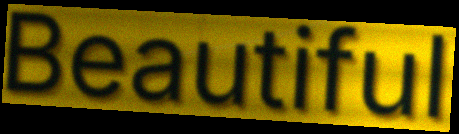
Beautiful